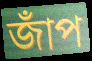
জাঁপ